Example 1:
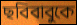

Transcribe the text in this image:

ছবিবাবুকে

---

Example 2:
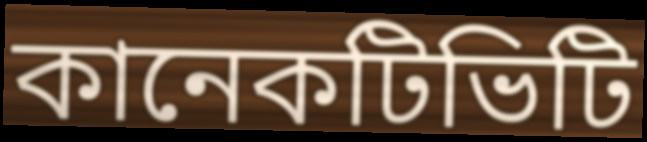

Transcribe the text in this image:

কানেকটিভিটি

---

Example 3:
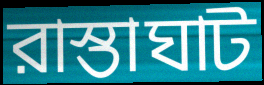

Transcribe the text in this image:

রাস্তাঘাট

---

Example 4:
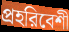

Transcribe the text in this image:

প্রহরিবেশী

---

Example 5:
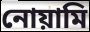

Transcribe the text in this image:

নোয়ামি